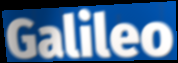
Galileo